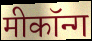
मीकॉन्ग